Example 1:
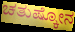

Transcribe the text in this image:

ಚತುಷ್ಕೋನ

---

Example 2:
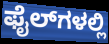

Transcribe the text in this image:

ಫೈಲ್‌ಗಳಲ್ಲಿ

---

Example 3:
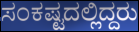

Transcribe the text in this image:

ಸಂಕಷ್ಟದಲ್ಲಿದ್ದರು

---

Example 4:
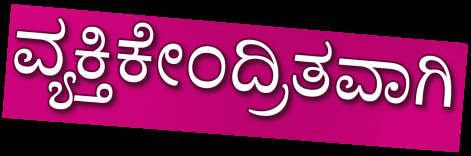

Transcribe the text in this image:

ವ್ಯಕ್ತಿಕೇಂದ್ರಿತವಾಗಿ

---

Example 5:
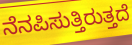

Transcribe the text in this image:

ನೆನಪಿಸುತ್ತಿರುತ್ತದೆ